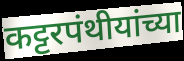
कट्टरपंथीयांच्या